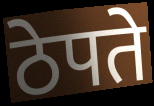
ठेपते